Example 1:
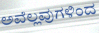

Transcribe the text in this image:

ಅವೆಲ್ಲವುಗಳಿಂದ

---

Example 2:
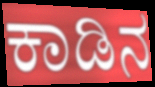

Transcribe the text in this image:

ಕಾಡಿನ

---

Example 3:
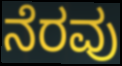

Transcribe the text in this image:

ನೆರವು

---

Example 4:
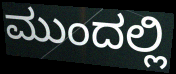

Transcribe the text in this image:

ಮುಂದಲ್ಲಿ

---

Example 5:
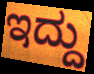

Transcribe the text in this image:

ಇದ್ದು